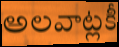
అలవాట్లకీ